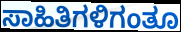
ಸಾಹಿತಿಗಳಿಗಂತೂ